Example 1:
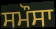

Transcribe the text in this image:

ਸਮੌਸਾ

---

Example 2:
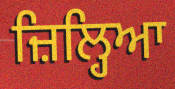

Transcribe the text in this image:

ਜ਼ਿਲ੍ਹਿਆ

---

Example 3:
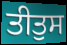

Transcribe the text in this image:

ਤੀਤੁਸ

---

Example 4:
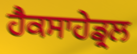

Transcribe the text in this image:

ਹੈਕਸਾਹੇਡ੍ਰਲ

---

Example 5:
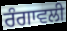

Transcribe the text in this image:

ਰੰਗਾਵਲੀ